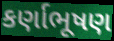
કર્ણાભૂષણ